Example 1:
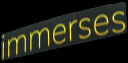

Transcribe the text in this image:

immerses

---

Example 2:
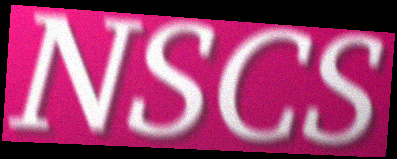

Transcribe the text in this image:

NSCS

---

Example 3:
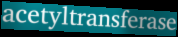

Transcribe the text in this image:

acetyltransferase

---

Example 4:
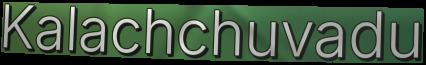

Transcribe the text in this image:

Kalachchuvadu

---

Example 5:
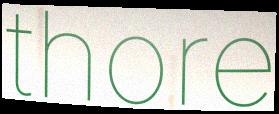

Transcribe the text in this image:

thore